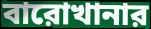
বারোখানার